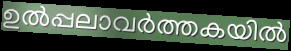
ഉൽപ്പലാവർത്തകയിൽ